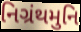
નિગ્રંથમુનિ